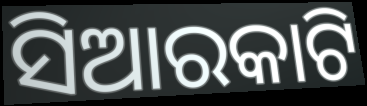
ସିଆରକାଟି